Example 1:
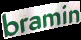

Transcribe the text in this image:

bramin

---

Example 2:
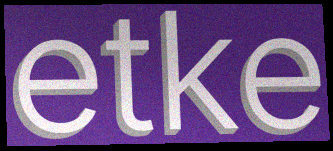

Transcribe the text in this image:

etke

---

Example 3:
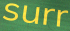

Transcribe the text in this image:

surr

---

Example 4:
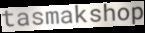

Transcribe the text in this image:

tasmakshop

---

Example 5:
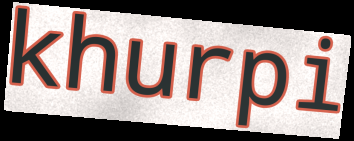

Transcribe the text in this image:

khurpi